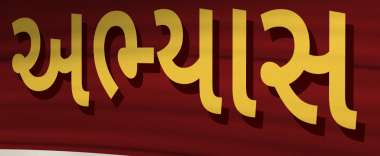
અભ્યાસ